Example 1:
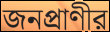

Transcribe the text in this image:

জনপ্রাণীর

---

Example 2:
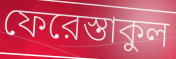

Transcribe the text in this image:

ফেরেস্তাকুল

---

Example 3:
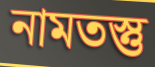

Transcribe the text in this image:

নামতস্তু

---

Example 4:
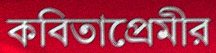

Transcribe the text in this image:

কবিতাপ্রেমীর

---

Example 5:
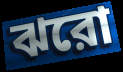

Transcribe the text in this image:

ঝরো